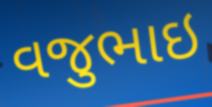
વજુભાઇ